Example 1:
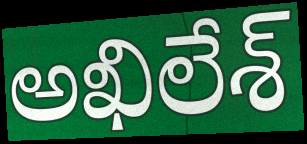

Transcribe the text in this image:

అఖిలేశ్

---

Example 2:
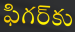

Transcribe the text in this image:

ఫిగర్‌కు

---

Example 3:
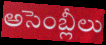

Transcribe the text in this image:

అసెంబ్లీలు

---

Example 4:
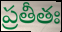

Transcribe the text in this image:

ప్రతీతః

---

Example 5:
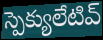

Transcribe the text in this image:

స్పెక్యులేటివ్